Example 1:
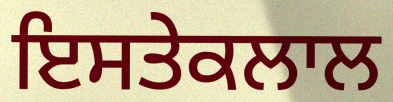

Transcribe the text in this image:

ਇਸਤੇਕਲਾਲ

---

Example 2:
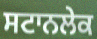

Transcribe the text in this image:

ਸਟਾਨਲੇਕ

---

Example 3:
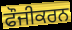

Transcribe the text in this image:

ਫੌਜੀਕਰਨ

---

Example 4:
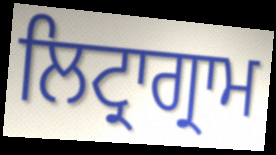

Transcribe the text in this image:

ਲਿਟ੍ਰਾਗ੍ਰਾਮ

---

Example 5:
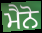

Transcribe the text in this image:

ਮੈਨੋ